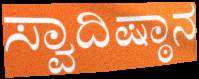
ಸ್ವಾದಿಷ್ಠಾನ